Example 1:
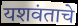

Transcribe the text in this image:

यशवंताचे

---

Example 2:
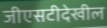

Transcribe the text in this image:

जीएसटीदेखील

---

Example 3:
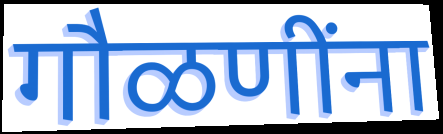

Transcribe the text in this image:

गौळणींना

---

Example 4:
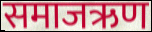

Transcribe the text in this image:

समाजऋण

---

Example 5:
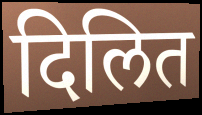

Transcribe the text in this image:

दिलित